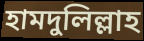
হামদুলিল্লাহ